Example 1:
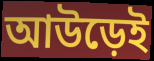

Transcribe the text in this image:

আউড়েই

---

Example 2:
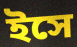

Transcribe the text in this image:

ইসে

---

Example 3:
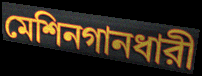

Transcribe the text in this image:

মেশিনগানধারী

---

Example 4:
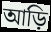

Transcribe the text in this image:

আড়ি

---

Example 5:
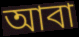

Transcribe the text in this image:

আবা